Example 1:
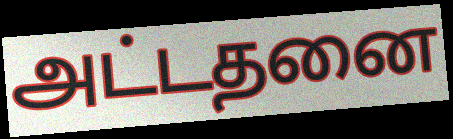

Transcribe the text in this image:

அட்டதனை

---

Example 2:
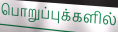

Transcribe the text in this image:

பொறுப்புக்களில்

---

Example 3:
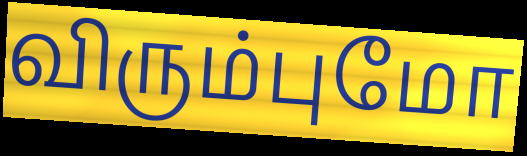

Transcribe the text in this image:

விரும்புமோ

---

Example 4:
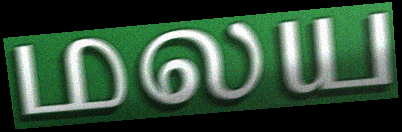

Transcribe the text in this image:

மலய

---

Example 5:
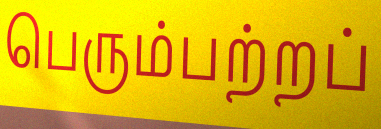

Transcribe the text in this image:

பெரும்பற்றப்